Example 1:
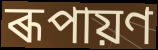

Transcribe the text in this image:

ৰূপায়ণ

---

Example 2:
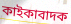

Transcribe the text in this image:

কাইকাবাদক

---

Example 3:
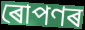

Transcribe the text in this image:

ৰোপণৰ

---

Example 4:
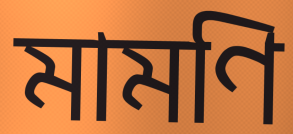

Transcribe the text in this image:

মামণি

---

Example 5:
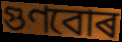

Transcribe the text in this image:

গুণবোৰ